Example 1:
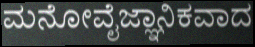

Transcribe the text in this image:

ಮನೋವೈಜ್ಞಾನಿಕವಾದ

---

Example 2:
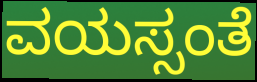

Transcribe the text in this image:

ವಯಸ್ಸಂತೆ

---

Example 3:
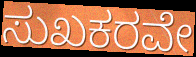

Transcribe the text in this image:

ಸುಖಕರವೇ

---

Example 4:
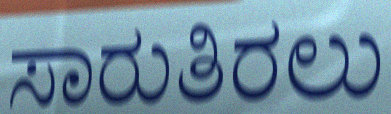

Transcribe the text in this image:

ಸಾರುತಿರಲು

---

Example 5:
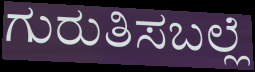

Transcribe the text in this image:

ಗುರುತಿಸಬಲ್ಲೆ